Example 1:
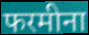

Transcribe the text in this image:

फरमीना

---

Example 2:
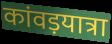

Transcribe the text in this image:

कांवड़यात्रा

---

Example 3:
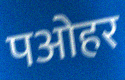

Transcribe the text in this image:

पओहर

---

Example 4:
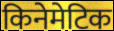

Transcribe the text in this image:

किनेमेटिक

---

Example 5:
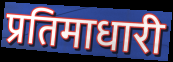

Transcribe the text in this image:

प्रतिमाधारी